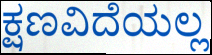
ಕ್ಷಣವಿದೆಯಲ್ಲ